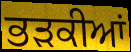
ਭੜਕੀਆਂ